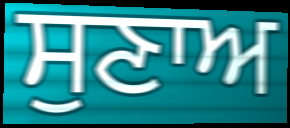
ਸੁਣਾਅ